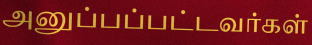
அனுப்பப்பட்டவர்கள்